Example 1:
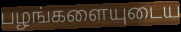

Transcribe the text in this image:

பழங்களையுடைய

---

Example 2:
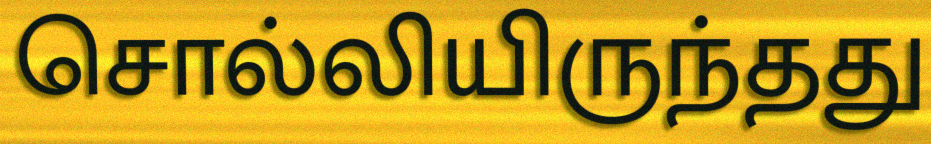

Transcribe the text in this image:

சொல்லியிருந்தது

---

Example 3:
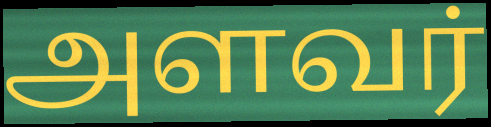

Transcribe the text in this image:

அளவர்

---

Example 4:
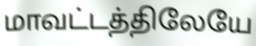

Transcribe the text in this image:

மாவட்டத்திலேயே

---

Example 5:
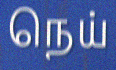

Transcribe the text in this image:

நெய்